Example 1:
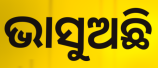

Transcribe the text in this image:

ଭାସୁଅଛି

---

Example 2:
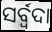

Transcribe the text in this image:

ସର୍ବ୍ବଦା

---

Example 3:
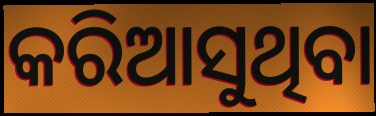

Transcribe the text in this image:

କରିଆସୁଥିବା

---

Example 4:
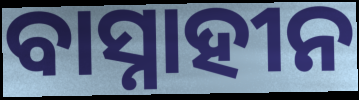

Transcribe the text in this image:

ବାସ୍ନାହୀନ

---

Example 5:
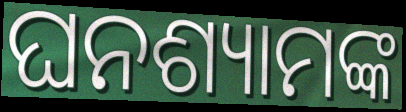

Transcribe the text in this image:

ଘନଶ୍ୟାମଙ୍କ